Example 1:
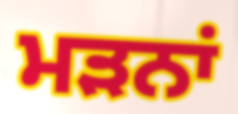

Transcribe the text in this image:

ਮੜਨਾਂ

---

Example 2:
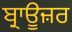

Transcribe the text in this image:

ਬ੍ਰਾਊਜ਼ਰ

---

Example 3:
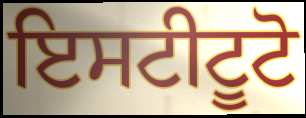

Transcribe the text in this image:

ਇਸਟੀਟੂਟੋ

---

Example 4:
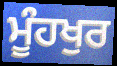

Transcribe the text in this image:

ਮੂੰਹਖੁਰ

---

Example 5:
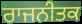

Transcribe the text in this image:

ਰਾਜਨੀਤਕ